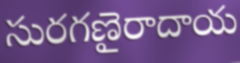
సురగణైరాదాయ